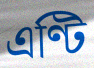
এণ্টি